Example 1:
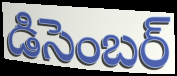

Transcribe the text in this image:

డిసెంబర్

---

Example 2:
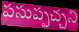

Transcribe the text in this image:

పసుప్పచ్చని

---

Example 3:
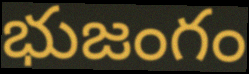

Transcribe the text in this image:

భుజంగం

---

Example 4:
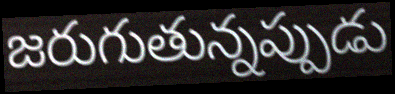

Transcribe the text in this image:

జరుగుతున్నప్పుడు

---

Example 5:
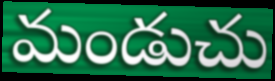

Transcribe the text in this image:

మండుచు